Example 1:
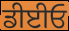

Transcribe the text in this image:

ਡੀਈਓ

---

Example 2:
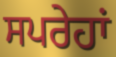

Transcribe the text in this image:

ਸਪਰੇਹਾਂ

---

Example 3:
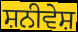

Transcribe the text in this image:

ਸ਼ਨੀਵੇਸ਼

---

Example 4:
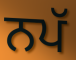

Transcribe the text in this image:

ਨਪੱ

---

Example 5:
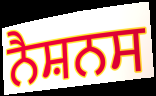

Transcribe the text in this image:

ਨੈਸ਼ਨਸ